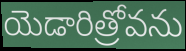
యెడారిత్రోవను